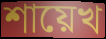
শায়েখ